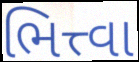
ભિત્ત્વા